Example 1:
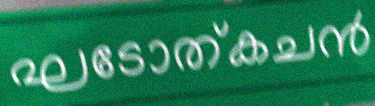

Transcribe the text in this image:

ഘടോത്കചൻ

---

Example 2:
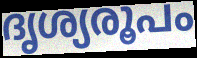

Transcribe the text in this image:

ദൃശ്യരൂപം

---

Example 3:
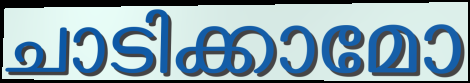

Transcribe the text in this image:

ചാടിക്കാമോ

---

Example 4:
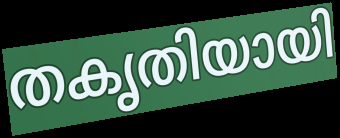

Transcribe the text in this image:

തകൃതിയായി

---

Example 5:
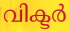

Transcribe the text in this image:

വിക്ടർ